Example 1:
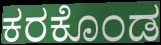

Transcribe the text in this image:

ಕರಕೊಂಡ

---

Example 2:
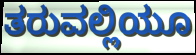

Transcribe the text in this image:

ತರುವಲ್ಲಿಯೂ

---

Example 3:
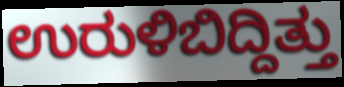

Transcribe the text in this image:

ಉರುಳಿಬಿದ್ದಿತ್ತು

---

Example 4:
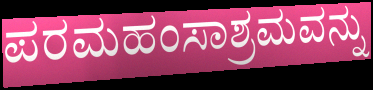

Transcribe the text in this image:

ಪರಮಹಂಸಾಶ್ರಮವನ್ನು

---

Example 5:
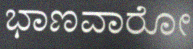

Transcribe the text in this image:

ಭಾಣವಾರೋ